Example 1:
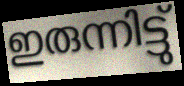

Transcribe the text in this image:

ഇരുന്നിട്ടു്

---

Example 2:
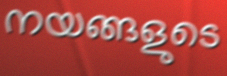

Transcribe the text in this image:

നയങ്ങളുടെ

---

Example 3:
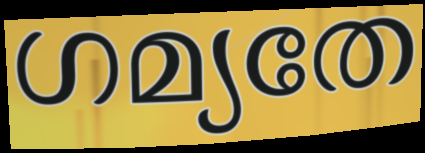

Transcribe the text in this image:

ഗമ്യതേ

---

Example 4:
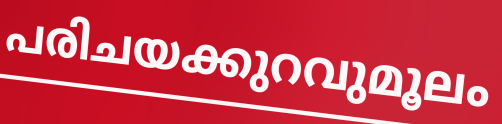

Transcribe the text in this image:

പരിചയക്കുറവുമൂലം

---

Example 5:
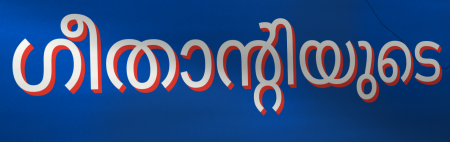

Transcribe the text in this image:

ഗീതാന്റിയുടെ